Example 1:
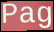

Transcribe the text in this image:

Pag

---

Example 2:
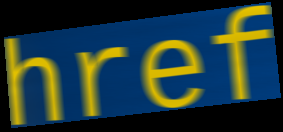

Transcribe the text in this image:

href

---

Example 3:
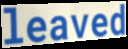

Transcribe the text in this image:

leaved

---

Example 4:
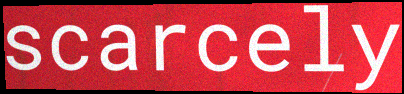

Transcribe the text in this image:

scarcely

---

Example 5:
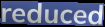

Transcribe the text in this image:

reduced